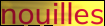
nouilles